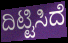
ದಿಟ್ಟಿಸಿದೆ